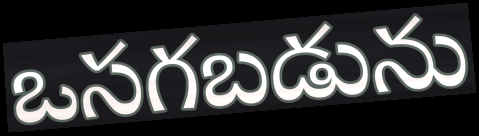
ఒసగబడును